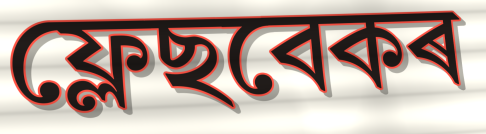
ফ্লেছবেকৰ